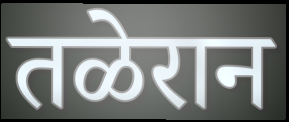
तळेरान